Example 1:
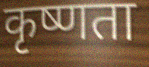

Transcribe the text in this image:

कृष्णता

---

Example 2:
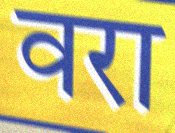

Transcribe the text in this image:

वरा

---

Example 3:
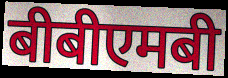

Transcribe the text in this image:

बीबीएमबी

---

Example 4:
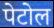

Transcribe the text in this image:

पेटोल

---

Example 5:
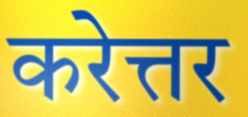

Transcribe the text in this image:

करेत्तर